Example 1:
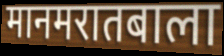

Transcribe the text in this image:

मानमरातबाला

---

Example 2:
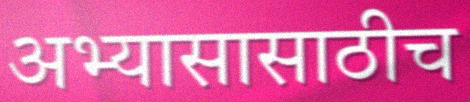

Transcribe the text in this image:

अभ्यासासाठीच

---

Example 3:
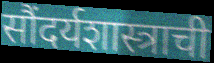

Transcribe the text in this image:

सौंदर्यशास्त्राची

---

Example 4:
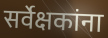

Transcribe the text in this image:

सर्वेक्षकांना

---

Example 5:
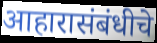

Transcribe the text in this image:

आहारासंबंधीचे